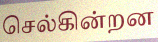
செல்கின்றன